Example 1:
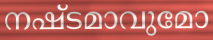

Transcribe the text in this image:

നഷ്ടമാവുമോ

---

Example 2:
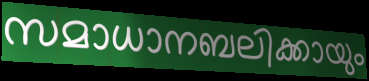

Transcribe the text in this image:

സമാധാനബലിക്കായും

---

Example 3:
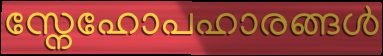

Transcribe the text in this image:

സ്നേഹോപഹാരങ്ങൾ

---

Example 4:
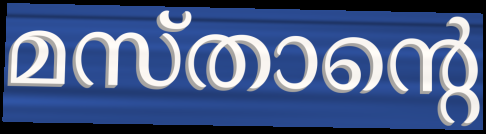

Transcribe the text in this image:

മസ്താന്റെ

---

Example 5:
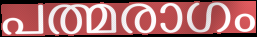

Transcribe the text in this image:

പത്മരാഗം